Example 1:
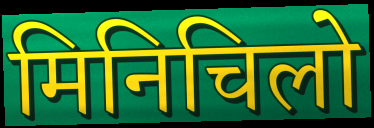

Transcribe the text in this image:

मिनिचिलो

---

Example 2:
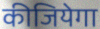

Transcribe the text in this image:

कीजियेगा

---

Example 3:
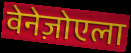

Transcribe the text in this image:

वेनेज़ोएला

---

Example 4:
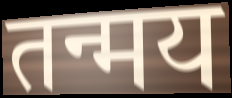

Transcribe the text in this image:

तन्मय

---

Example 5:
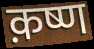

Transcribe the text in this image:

क़ष्ण